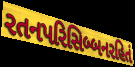
રતનપરિસિબ્બનરહિતં